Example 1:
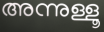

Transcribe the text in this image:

അന്നുള്ളൂ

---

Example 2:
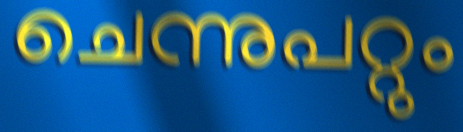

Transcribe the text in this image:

ചെന്നുപറ്റും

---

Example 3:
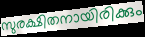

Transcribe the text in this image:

സുരക്ഷിതനായിരിക്കും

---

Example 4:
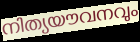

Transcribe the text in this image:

നിത്യയൗവനവും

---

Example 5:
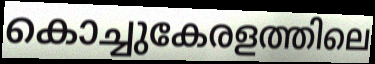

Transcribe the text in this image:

കൊച്ചുകേരളത്തിലെ